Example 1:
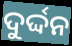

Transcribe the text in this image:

ଦୁର୍ଦ୍ଦନ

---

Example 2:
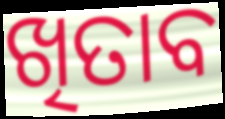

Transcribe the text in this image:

ଖିତାବ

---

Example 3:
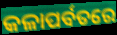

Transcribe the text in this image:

କଳାପର୍ବତରେ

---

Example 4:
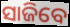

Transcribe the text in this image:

ସାଜିବେ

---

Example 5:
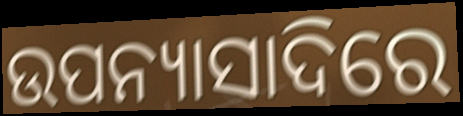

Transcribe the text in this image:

ଉପନ୍ୟାସାଦିରେ